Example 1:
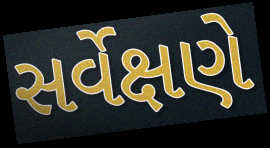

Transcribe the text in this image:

સર્વેક્ષણે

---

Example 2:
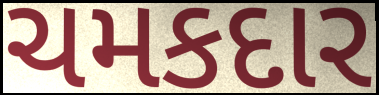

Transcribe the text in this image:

ચમકદાર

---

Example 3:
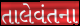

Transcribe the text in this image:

તાલેવંતના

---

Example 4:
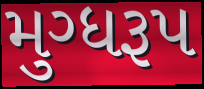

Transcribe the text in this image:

મુગ્ધરૂપ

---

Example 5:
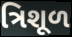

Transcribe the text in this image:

ત્રિશૂળ